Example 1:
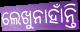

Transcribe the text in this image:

ଲେଖୁନାହାଁନ୍ତି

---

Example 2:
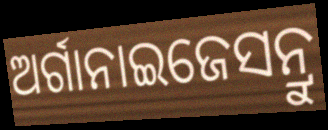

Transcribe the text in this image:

ଅର୍ଗାନାଇଜେସନ୍ରୁ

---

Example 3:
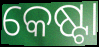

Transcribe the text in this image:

କେଷ୍ଟା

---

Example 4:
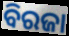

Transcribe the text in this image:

ବିରଜା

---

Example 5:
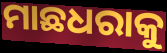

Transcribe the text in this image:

ମାଛଧରାକୁ